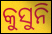
କୁସୁନି